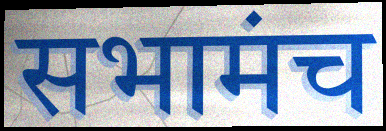
सभामंच